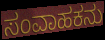
ಸಂವಾಹಕನು